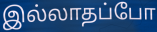
இல்லாதப்போ